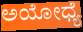
ಅಯೋಧ್ಯೆ